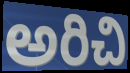
అరిచి